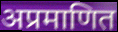
अप्रमाणित